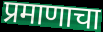
प्रमाणाचा